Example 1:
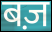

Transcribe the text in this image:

बज़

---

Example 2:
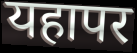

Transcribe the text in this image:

यहापर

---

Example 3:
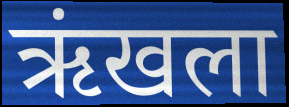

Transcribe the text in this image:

ऋंखला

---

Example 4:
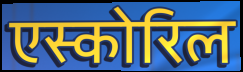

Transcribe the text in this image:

एस्कोरिल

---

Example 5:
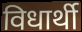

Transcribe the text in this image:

विधार्थी